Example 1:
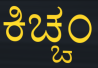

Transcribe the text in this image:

ಕಿಚ್ಚಂ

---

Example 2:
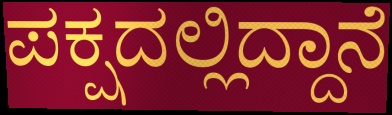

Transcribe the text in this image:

ಪಕ್ಷದಲ್ಲಿದ್ದಾನೆ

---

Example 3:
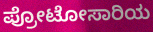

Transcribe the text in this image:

ಪ್ರೋಟೋಸಾರಿಯ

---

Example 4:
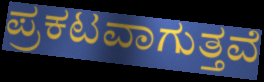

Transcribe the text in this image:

ಪ್ರಕಟವಾಗುತ್ತವೆ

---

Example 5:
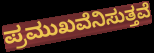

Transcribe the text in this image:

ಪ್ರಮುಖವೆನಿಸುತ್ತವೆ